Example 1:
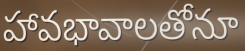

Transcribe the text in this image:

హావభావాలతోనూ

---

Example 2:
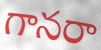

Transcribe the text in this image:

గానరా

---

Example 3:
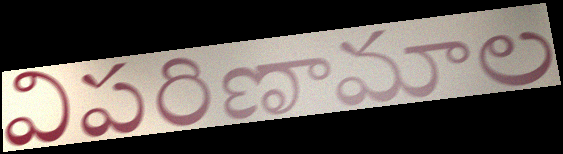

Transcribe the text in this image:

విపరిణామాల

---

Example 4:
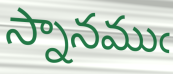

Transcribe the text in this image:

స్నానముఁ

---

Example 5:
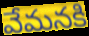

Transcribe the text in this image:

వేమనకి